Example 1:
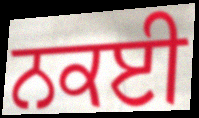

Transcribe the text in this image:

ਨਕਈ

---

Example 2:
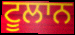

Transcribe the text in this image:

ਟੂਲਾਨ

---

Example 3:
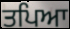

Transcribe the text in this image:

ਤਪਿਆ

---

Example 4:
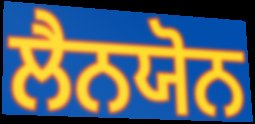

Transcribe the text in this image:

ਲੈਨਯੋਨ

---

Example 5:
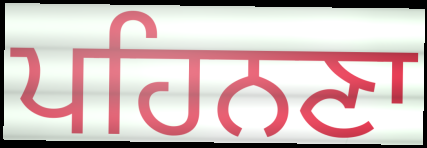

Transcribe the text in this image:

ਪਹਿਨਣਾ